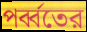
পর্ব্বতের